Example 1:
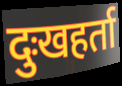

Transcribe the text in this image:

दुःखहर्ता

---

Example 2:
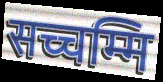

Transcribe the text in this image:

सच्चम्मि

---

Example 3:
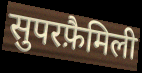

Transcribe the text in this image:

सुपरफ़ैमिली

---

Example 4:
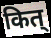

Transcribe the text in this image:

कित्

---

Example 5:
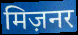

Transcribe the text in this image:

मिज़नर